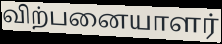
விற்பனையாளர்